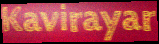
Kavirayar